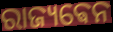
ରାଜ୍ୟଵେନ